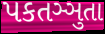
પકતઞ્ઞુતા